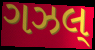
ગઝલ્